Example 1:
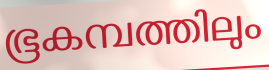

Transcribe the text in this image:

ഭൂകമ്പത്തിലും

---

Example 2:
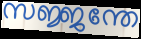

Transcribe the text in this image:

സജ്ജന്തേ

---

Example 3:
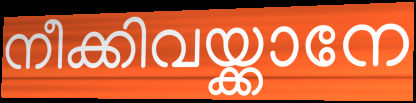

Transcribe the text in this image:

നീക്കിവയ്ക്കാനേ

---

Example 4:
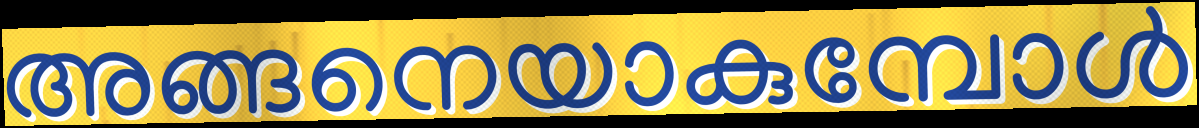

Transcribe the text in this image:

അങ്ങനെയാകുമ്പോൾ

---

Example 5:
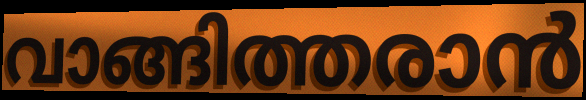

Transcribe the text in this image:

വാങ്ങിത്തരാൻ